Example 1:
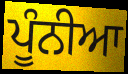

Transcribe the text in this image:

ਪੂੰਨੀਆ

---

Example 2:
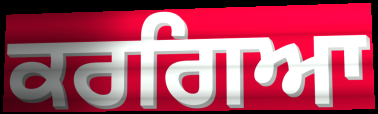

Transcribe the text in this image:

ਕਰਗਿਆ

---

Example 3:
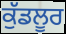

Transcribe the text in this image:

ਕੁੱਡਲੂਰ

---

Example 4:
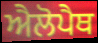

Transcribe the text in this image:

ਐਲੋਪੈਥ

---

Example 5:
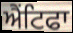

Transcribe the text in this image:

ਐਂਟਿਫਾ